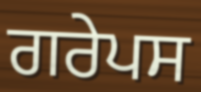
ਗਰੇਪਸ